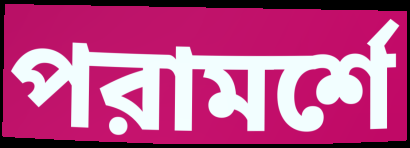
পরামর্শে